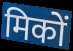
मिकों